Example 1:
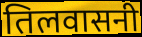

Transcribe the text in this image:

तिलवासनी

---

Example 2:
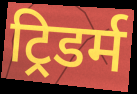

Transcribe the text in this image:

ट्रिडर्म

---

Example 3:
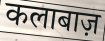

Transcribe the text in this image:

कलाबाज़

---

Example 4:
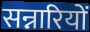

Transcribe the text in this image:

सन्नारियों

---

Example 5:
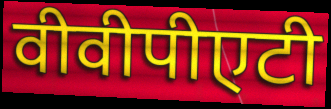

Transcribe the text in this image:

वीवीपीएटी